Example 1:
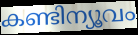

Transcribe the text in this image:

കണ്ടിന്യൂവം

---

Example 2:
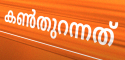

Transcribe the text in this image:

കൺതുറന്നത്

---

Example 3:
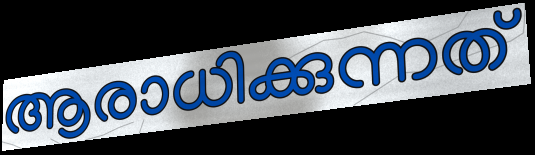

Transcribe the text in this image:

ആരാധിക്കുന്നത്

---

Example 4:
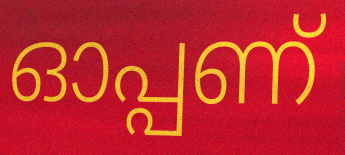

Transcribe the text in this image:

ഓപ്പണ്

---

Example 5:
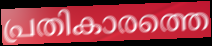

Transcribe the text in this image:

പ്രതികാരത്തെ